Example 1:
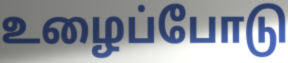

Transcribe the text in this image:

உழைப்போடு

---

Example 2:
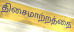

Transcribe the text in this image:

திசைமாற்றத்தை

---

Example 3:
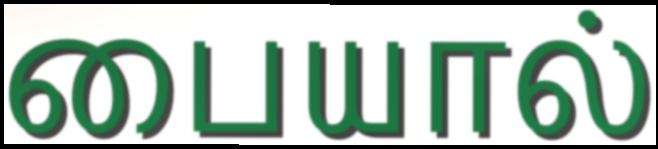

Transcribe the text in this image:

பையால்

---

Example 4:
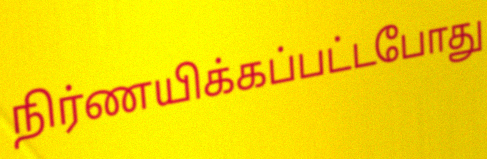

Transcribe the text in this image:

நிர்ணயிக்கப்பட்டபோது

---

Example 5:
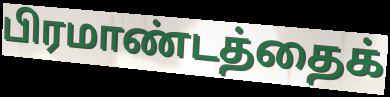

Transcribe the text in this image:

பிரமாண்டத்தைக்